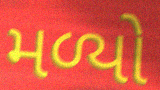
મળ્યો